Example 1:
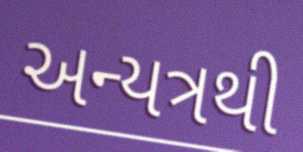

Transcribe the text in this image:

અન્યત્રથી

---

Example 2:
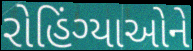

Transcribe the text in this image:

રોહિંગ્યાઓને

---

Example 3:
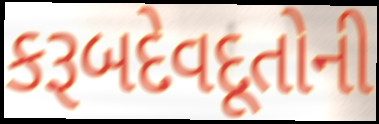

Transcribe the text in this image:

કરૂબદેવદૂતોની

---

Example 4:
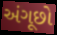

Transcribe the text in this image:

અંગૂછો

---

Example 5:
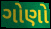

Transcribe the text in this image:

ગોણો